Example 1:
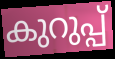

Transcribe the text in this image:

കുറുപ്പ്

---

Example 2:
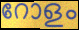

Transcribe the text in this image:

റോളം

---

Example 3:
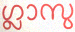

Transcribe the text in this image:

ഗ്ലാസു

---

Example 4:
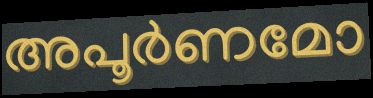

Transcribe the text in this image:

അപൂർണമോ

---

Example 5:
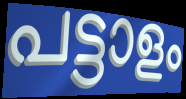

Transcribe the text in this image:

പട്ടാളം